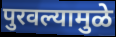
पुरवल्यामुळे